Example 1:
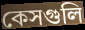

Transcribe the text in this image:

কেসগুলি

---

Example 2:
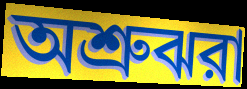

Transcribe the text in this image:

অশ্রুঝরা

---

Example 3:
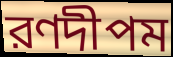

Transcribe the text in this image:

রণদীপম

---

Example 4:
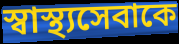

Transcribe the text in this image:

স্বাস্থ্যসেবাকে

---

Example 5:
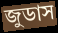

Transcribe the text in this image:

জুডাস